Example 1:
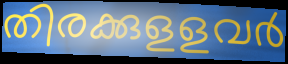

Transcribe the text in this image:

തിരക്കുളളവർ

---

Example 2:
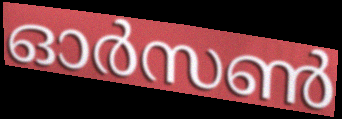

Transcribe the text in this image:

ഓർസൺ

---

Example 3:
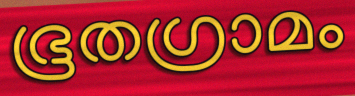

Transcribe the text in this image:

ഭൂതഗ്രാമം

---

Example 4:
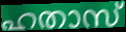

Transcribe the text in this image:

ഹതാസ്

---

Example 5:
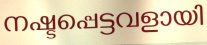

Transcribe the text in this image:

നഷ്ടപ്പെട്ടവളായി